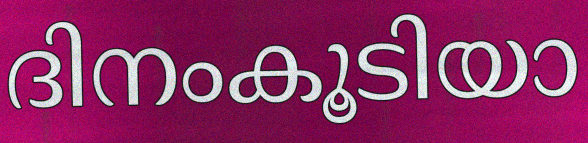
ദിനംകൂടിയാ